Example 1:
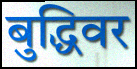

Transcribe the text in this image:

बुद्धिवर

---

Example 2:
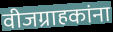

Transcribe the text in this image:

वीजग्राहकांना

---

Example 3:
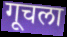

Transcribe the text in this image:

गूचला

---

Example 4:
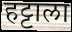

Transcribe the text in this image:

हट्टाला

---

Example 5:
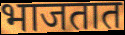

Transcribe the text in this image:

भाजतात